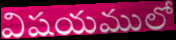
విషయములో